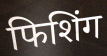
फिशिंग